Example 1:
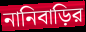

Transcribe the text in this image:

নানিবাড়ির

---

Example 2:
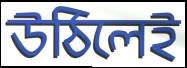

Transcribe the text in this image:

উঠিলেই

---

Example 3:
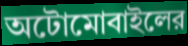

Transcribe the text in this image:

অটোমোবাইলের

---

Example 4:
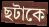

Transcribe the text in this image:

ছটাকে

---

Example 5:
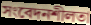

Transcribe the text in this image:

সংবেদনশীলতা